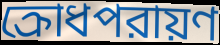
ক্রোধপরায়ণ